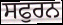
ਸਫੁਰਨ